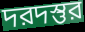
দরদস্তুর